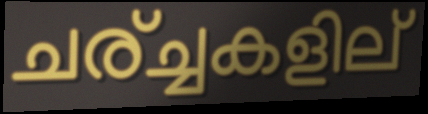
ചര്ച്ചകളില്